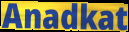
Anadkat